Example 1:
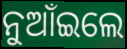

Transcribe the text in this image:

ନୁଆଁଇଲେ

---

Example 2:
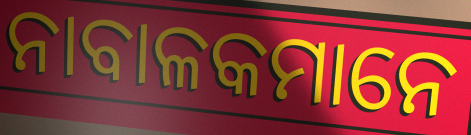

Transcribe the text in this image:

ନାବାଳକମାନେ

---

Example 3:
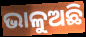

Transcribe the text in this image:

ଭାଳୁଅଛି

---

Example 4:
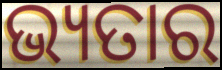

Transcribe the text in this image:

ଭ୍ୟତାର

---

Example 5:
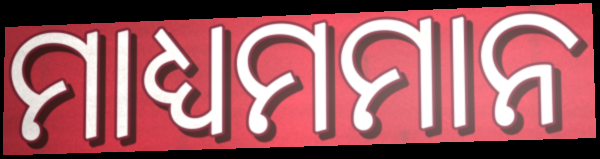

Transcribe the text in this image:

ମାଧ୍ୟମମାନ